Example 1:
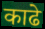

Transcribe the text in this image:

काढे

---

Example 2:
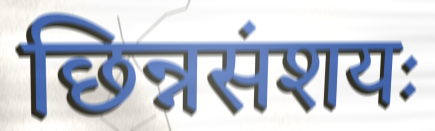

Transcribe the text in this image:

छिन्नसंशयः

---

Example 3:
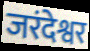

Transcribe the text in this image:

जरंदेश्वर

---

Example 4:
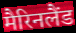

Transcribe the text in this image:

मैरिनलैंड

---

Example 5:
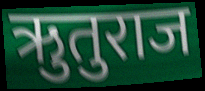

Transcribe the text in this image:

ऋुतुराज